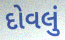
દોવલું